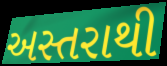
અસ્તરાથી